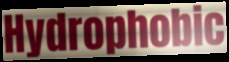
Hydrophobic